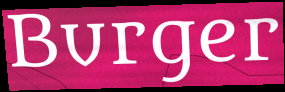
Burger